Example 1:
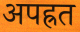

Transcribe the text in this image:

अपह्रत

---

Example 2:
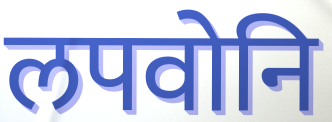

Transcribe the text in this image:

लपवोनि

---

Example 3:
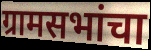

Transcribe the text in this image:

ग्रामसभांचा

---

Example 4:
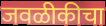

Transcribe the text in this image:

जवळीकीचा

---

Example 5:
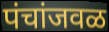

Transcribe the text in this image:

पंचांजवळ